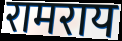
रामराय